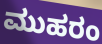
ಮುಹರಂ